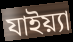
যাইয়্যা